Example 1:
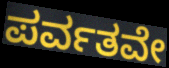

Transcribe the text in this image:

ಪರ್ವತವೇ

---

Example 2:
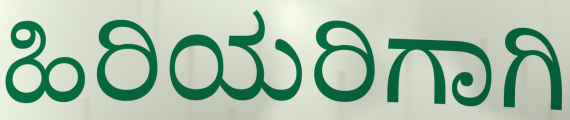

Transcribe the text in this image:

ಹಿರಿಯರಿಗಾಗಿ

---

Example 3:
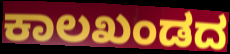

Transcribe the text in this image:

ಕಾಲಖಂಡದ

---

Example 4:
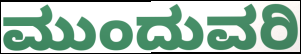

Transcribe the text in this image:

ಮುಂದುವರಿ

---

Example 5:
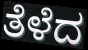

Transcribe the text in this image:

ತೆಳೆದ